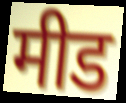
मीड